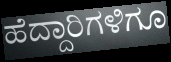
ಹೆದ್ದಾರಿಗಳಿಗೂ